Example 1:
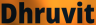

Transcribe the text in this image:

Dhruvit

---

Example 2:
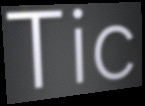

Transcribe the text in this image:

Tic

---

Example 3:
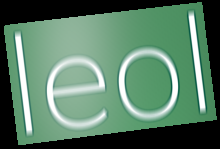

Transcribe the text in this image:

leol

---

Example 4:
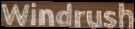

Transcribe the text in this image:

Windrush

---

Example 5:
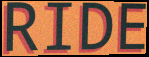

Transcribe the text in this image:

RIDE